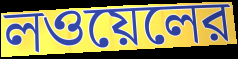
লওয়েলের